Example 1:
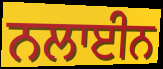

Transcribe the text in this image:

ਨਲਾਈਨ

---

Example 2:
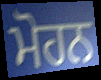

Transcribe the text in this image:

ਮੋਹਨ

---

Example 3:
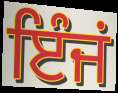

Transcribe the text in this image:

ਇੰਜਂ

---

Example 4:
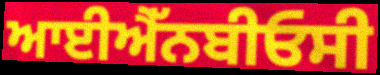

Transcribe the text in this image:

ਆਈਐੱਨਬੀਓਸੀ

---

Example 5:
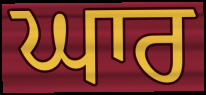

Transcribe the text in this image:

ਘਾਰ